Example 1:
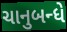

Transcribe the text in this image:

ચાનુબન્ધે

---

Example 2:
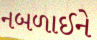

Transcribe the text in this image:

નબળાઈને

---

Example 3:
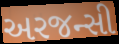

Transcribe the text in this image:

અરજન્સી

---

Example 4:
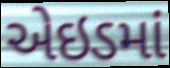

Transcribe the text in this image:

એઇડમાં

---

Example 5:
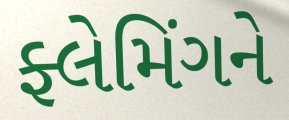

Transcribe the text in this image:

ફ્લેમિંગને